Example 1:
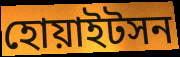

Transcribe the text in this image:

হোয়াইটসন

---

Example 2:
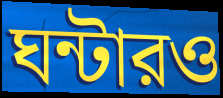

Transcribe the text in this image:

ঘন্টারও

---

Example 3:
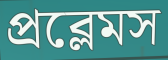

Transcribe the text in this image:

প্রব্লেমস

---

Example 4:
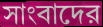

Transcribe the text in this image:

সাংবাদের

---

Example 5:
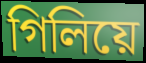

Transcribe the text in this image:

গিলিয়ে